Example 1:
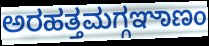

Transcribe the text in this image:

ಅರಹತ್ತಮಗ್ಗಞಾಣಂ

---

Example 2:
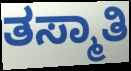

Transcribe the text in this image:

ತಸ್ಮಾತಿ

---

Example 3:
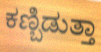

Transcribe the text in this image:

ಕಣ್ಬಿಡುತ್ತಾ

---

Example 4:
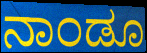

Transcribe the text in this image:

ನಾಂಡೂ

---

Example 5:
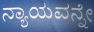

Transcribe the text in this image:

ನ್ಯಾಯವನ್ನೇ